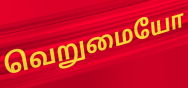
வெறுமையோ